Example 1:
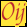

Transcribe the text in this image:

Oij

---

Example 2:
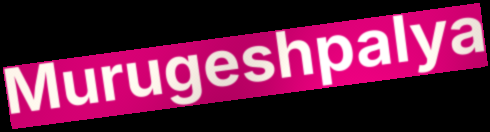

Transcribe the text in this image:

Murugeshpalya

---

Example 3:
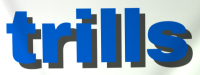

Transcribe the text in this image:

trills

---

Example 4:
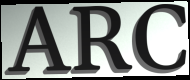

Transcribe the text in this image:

ARC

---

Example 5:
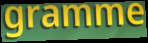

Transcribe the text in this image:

gramme